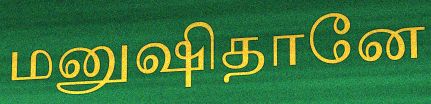
மனுஷிதானே